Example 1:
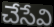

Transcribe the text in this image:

చేసేవి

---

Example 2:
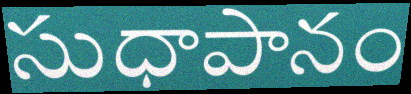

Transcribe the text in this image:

సుధాపానం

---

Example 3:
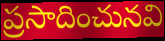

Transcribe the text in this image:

ప్రసాదించునవి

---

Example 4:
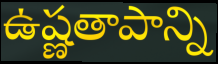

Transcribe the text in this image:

ఉష్ణతాపాన్ని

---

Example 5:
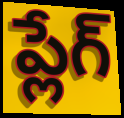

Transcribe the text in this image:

ప్లేగ్